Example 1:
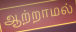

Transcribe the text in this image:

ஆற்றாமல்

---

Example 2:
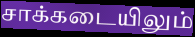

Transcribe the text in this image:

சாக்கடையிலும்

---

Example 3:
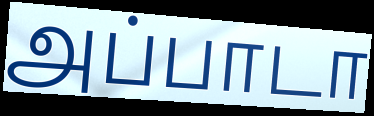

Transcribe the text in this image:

அப்பாடா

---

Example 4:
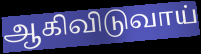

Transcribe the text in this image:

ஆகிவிடுவாய்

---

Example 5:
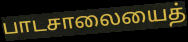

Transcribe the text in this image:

பாடசாலையைத்